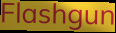
Flashgun